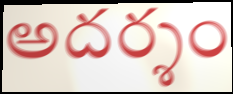
అదర్శం